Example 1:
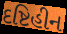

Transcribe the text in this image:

દષ્ટિહીન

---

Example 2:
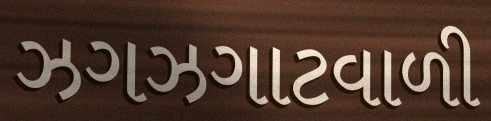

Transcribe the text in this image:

ઝગઝગાટવાળી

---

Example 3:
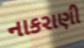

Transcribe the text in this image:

નાકરાણી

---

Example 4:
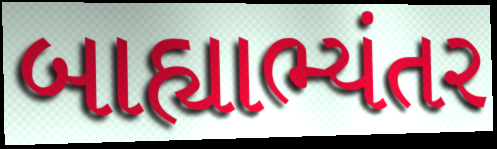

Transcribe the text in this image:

બાહ્યાભ્યંતર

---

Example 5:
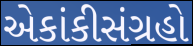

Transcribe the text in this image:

એકાંકીસંગ્રહો